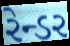
રેન્ડર